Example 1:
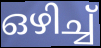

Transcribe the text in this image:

ഒഴിച്ച്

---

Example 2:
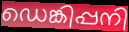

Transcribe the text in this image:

ഡെങ്കിപ്പനി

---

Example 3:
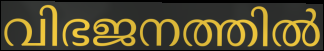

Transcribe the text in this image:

വിഭജനത്തിൽ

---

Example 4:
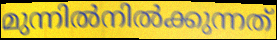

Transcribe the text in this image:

മുന്നിൽനിൽക്കുന്നത്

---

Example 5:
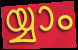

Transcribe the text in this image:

യ്യാം